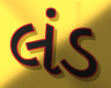
લંડ